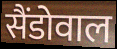
सैंडोवाल